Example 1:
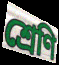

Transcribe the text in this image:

শ্রেণি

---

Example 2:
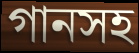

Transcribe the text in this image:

গানসহ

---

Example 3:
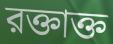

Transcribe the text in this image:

রক্তাক্ত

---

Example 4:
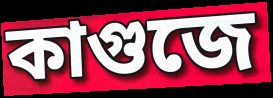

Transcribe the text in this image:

কাগুজে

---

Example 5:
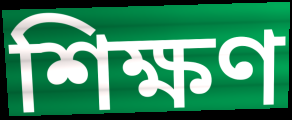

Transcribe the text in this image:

শিক্ষণ